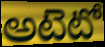
అటెటో